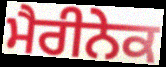
ਮੈਰੀਨੇਕ